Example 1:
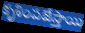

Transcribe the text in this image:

కృశింపజేస్తాయి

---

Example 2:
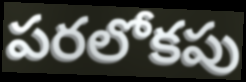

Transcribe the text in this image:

పరలోకపు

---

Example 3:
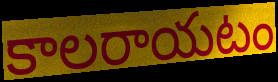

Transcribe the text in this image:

కాలరాయటం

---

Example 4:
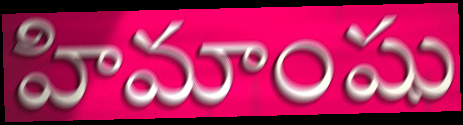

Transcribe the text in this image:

హిమాంషు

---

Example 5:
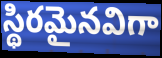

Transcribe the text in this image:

స్థిరమైనవిగా